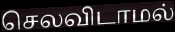
செலவிடாமல்